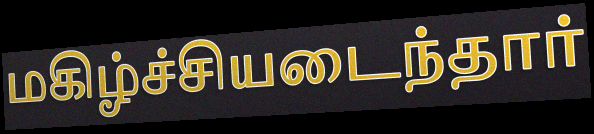
மகிழ்ச்சியடைந்தார்